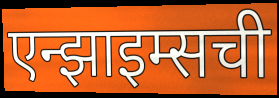
एन्झाइम्सची